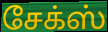
சேக்ஸ்